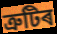
ত্ৰুটিৰ